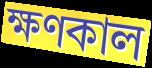
ক্ষণকাল